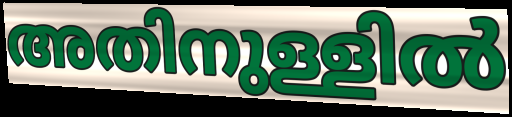
അതിനുള്ളിൽ